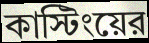
কাস্টিংয়ের